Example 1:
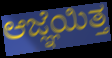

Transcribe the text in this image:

ಆಜ್ಞೆಯಿತ್ತ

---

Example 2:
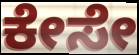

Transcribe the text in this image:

ಕೇಸೇ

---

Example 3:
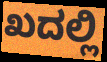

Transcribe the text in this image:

ಖದಲ್ಲಿ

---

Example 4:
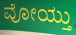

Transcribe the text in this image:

ವೋಯ್ತು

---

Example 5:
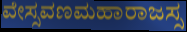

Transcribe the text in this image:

ವೇಸ್ಸವಣಮಹಾರಾಜಸ್ಸ